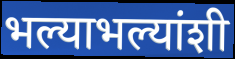
भल्याभल्यांशी